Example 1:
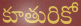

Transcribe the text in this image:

కూతురికో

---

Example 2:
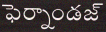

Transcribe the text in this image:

ఫెర్నాండజ్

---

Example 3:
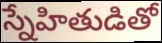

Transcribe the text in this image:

స్నేహితుడితో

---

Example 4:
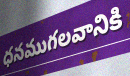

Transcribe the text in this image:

ధనముగలవానికి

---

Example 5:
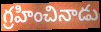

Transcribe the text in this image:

గ్రహించినాడు